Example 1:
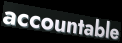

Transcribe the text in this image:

accountable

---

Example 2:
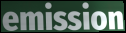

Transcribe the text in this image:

emission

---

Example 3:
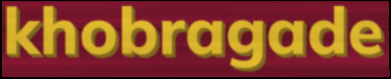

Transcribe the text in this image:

khobragade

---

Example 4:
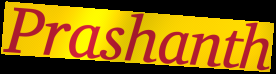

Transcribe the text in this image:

Prashanth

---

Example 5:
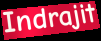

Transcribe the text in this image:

Indrajit